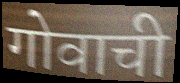
गोवाची